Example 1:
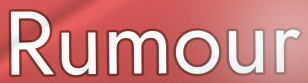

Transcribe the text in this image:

Rumour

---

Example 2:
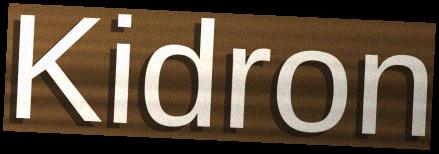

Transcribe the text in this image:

Kidron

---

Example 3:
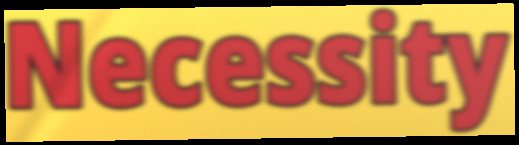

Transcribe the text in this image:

Necessity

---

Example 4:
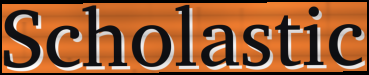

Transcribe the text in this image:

Scholastic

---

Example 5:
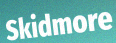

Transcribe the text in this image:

Skidmore